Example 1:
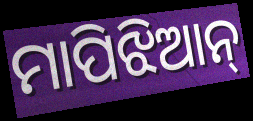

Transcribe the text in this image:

ମାପିଝିଆନ୍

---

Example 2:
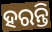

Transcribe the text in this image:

ହରନ୍ତି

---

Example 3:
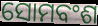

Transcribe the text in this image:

ସୋମବଂଶ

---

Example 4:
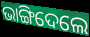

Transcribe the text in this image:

ଭାଙ୍ଗିଦେଲେ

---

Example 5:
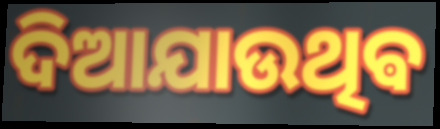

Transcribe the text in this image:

ଦିଆଯାଉଥିଵ